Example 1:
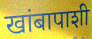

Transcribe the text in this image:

खांबापाशी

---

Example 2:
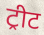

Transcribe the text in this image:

ट्रीट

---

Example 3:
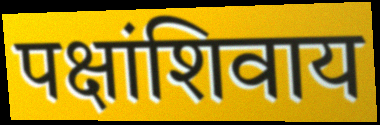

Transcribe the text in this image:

पक्षांशिवाय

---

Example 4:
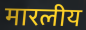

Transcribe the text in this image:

मारलीय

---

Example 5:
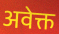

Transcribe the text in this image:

अवेक्त